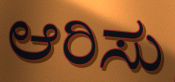
ಆರಿಸು